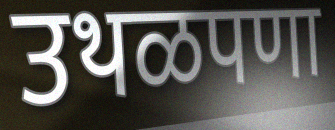
उथळपणा